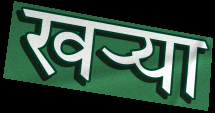
खऱ्या